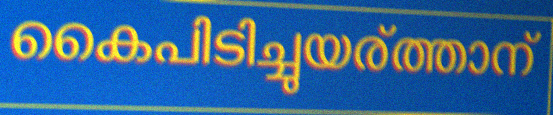
കൈപിടിച്ചുയര്ത്താന്